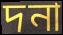
দনা